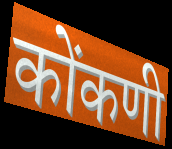
कोंकणी